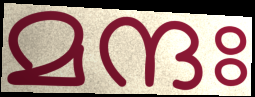
മന്ദഃ